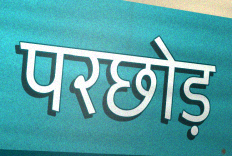
परछोड़